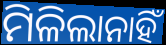
ମିଳିଲାନାହିଁ